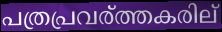
പത്രപ്രവര്ത്തകരില്